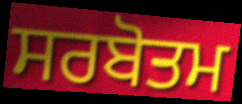
ਸਰਬੋਤਮ